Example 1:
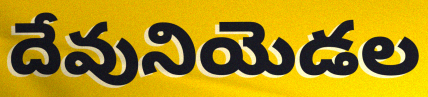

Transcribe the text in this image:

దేవునియెడల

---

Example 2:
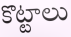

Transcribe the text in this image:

కొట్టాలు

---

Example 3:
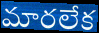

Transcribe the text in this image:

మారలేక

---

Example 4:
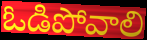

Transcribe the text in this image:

ఓడిపోవాలి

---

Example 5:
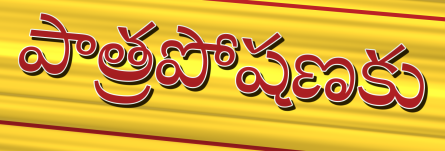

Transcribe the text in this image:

పాత్రపోషణకు